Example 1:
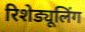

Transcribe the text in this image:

रिशेड्यूलिंग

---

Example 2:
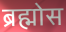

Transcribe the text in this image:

ब्रह्मोस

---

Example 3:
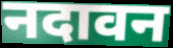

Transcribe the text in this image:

नदावन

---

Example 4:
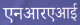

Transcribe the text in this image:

एनआरएआई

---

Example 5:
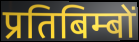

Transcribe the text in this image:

प्रतिबिम्बों